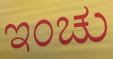
ಇಂಚು